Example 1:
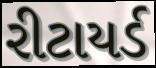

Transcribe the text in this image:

રીટાયર્ડ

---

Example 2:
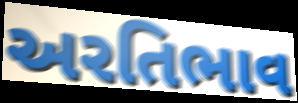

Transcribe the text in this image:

અરતિભાવ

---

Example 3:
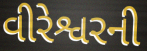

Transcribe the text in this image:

વીરેશ્વરની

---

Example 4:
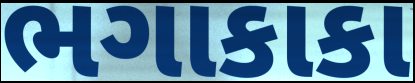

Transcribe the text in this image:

ભગાકાકા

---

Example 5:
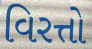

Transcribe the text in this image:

વિરત્તો